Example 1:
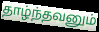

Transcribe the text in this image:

தாழ்ந்தவனும்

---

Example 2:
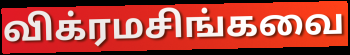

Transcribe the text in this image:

விக்ரமசிங்கவை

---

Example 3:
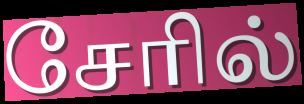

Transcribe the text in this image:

சேரில்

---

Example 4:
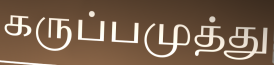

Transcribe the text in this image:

கருப்பமுத்து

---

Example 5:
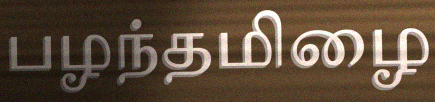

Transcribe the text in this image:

பழந்தமிழை